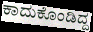
ಕಾದುಕೊಂಡಿದ್ದ